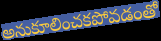
అనుకూలించకపోవడంతో